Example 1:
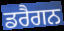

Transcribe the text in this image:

ਡਰੈਗਨ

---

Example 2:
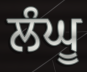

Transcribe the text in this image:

ਲੰਘੂ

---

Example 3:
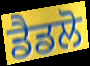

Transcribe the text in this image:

ਡੈਡਲੋ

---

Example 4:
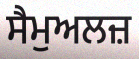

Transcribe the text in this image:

ਸੈਮੁਅਲਜ਼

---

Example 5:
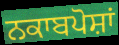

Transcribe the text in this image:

ਨਕਾਬਪੋਸ਼ਾਂ